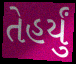
તેહર્યું